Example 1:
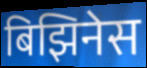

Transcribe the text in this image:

बिझिनेस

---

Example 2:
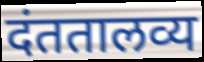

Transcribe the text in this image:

दंततालव्य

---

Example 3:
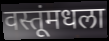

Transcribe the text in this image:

वस्तूंमधला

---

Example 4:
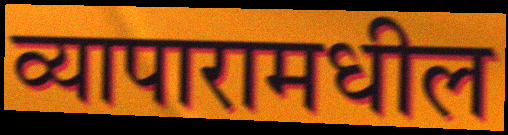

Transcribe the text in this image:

व्यापारामधील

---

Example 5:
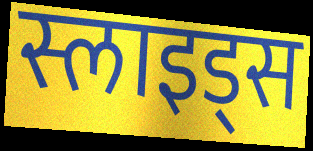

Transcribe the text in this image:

स्लाइड्स